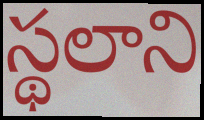
స్థలాని